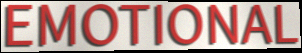
EMOTIONAL